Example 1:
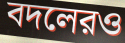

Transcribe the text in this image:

বদলেরও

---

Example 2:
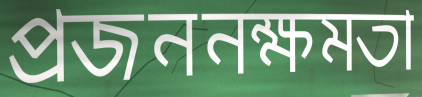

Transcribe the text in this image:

প্রজননক্ষমতা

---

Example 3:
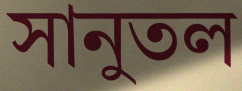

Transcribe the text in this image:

সানুতল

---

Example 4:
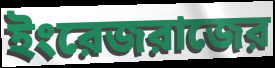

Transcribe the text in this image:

ইংরেজরাজের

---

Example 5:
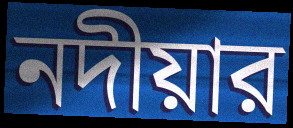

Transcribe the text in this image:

নদীয়ার